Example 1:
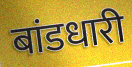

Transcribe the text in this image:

बांडधारी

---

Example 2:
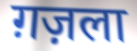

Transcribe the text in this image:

ग़ज़ला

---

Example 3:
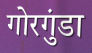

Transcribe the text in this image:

गोरगुंडा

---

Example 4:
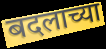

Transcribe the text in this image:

बदलाच्या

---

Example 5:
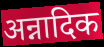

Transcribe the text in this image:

अन्नादिक